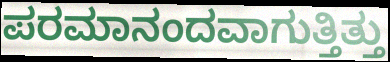
ಪರಮಾನಂದವಾಗುತ್ತಿತ್ತು